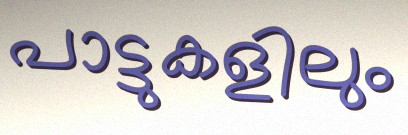
പാട്ടുകളിലും